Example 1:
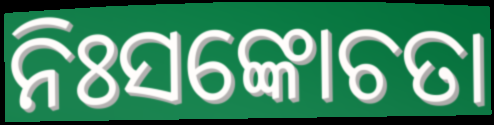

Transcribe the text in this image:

ନିଃସଙ୍କୋଚତା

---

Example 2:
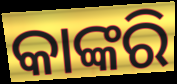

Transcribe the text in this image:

କାଙ୍କରି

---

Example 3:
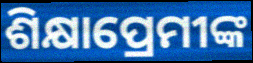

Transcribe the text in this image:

ଶିକ୍ଷାପ୍ରେମୀଙ୍କ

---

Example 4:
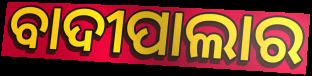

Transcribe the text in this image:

ବାଦୀପାଲାର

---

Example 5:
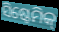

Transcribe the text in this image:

ସିଷ୍ଟେମିକ୍